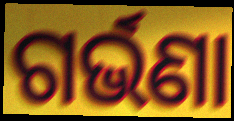
ଗର୍ଭଣା